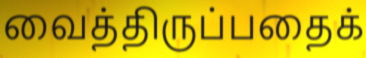
வைத்திருப்பதைக்